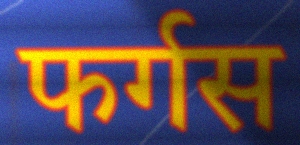
फर्गस